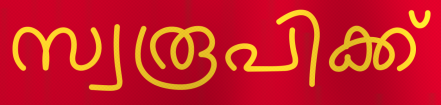
സ്വരൂപിക്ക്